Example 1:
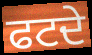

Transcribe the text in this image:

ਫਟਦੇ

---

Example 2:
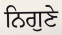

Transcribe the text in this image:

ਨਿਗੁਣੇ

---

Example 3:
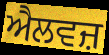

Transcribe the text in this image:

ਐਲਵਜ਼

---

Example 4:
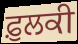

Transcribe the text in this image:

ਫ਼ੁਲਕੀ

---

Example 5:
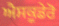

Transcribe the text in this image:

ਐਸਕੂਡੇਰੋ